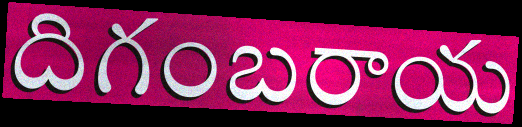
దిగంబరాయ